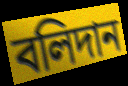
বলিদান